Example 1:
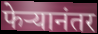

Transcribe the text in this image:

फेऱ्यानंतर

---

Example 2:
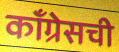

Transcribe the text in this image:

काँग्रेसची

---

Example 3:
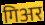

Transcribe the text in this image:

गिअर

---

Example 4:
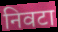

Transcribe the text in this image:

निवटा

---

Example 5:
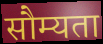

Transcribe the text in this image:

सौम्यता